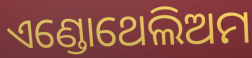
ଏଣ୍ଡୋଥେଲିଅମ